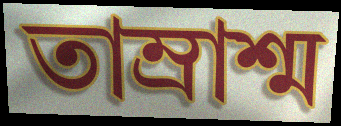
তাম্রাশ্ম